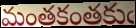
మంతకంతకుఁ